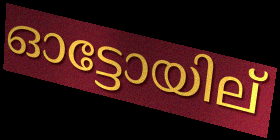
ഓട്ടോയില്